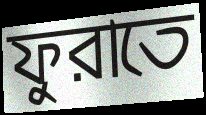
ফুরাতে